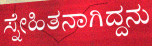
ಸ್ನೇಹಿತನಾಗಿದ್ದನು